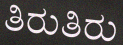
ತಿರುತಿರು